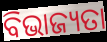
ବିଭାଜ୍ୟତା